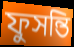
ফুসন্তি